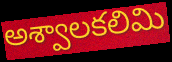
అశ్వాలకలిమి